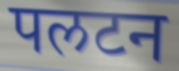
पलटन